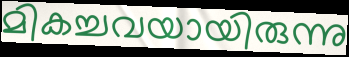
മികച്ചവയായിരുന്നു